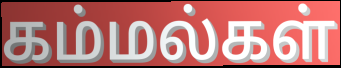
கம்மல்கள்